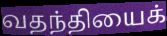
வதந்தியைக்